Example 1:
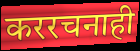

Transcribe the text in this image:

कररचनाही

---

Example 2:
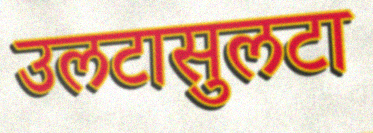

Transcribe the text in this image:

उलटासुलटा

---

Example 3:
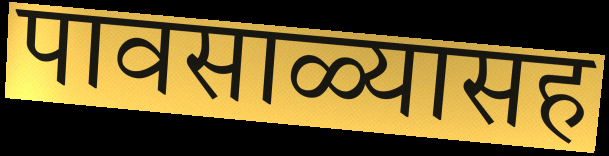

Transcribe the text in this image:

पावसाळ्यासह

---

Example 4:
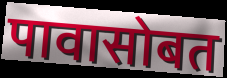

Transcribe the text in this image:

पावासोबत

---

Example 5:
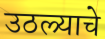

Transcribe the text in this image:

उठल्याचे